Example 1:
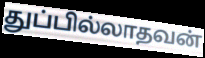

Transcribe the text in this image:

துப்பில்லாதவன்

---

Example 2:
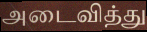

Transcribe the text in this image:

அடைவித்து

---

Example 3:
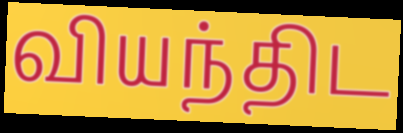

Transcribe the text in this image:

வியந்திட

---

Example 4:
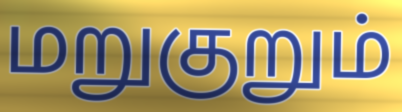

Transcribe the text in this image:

மறுகுறும்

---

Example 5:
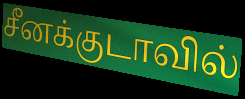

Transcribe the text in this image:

சீனக்குடாவில்